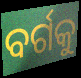
ବର୍ଗକୁ